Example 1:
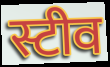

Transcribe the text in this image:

स्टीव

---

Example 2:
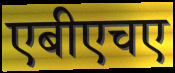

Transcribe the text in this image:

एबीएचए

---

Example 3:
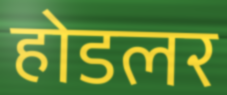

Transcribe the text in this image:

होडलर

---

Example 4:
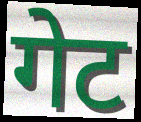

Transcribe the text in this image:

गेट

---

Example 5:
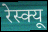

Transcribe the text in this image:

रेस्क्यू